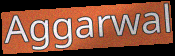
Aggarwal